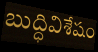
బుద్ధివిశేషం